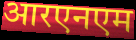
आरएनएम